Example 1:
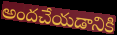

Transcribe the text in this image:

అందచేయడానికి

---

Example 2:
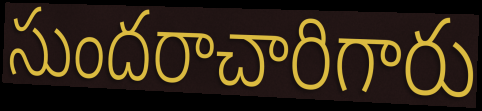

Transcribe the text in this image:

సుందరాచారిగారు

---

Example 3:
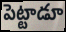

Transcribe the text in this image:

పెట్టాడూ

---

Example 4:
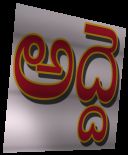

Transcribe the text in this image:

అద్దె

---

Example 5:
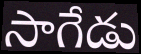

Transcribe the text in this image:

సాగేడు